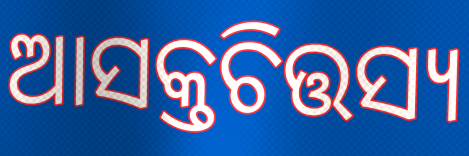
ଆସକ୍ତଚିତ୍ତସ୍ୟ